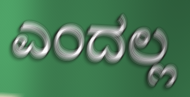
ಎಂದಲ್ಲ